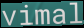
vimal